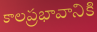
కాలప్రభావానికి